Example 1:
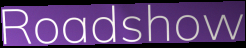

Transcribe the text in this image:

Roadshow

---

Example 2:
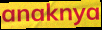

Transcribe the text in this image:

anaknya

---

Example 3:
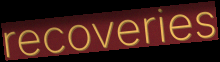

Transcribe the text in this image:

recoveries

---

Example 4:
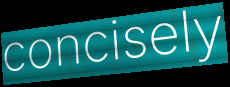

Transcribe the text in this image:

concisely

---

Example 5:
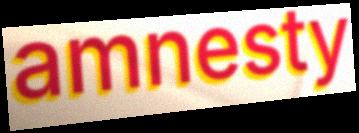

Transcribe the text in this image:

amnesty